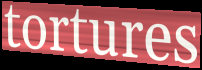
tortures